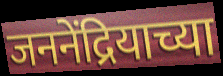
जननेंद्रियाच्या